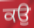
ਕਉ